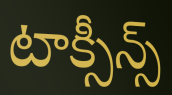
టాక్సీన్స్